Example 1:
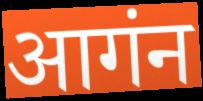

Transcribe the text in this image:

आगंन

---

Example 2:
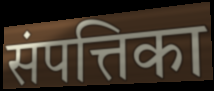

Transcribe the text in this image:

संपत्तिका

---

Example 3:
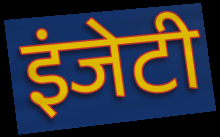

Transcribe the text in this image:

इंजेटी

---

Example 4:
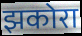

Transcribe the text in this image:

झकोरा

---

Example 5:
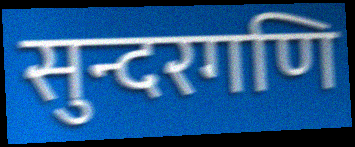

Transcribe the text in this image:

सुन्दरगणि